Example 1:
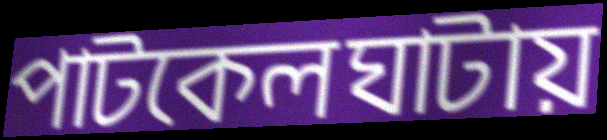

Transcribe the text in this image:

পাটকেলঘাটায়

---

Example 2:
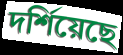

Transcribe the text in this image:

দর্শিয়েছে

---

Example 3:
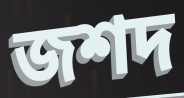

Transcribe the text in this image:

জশদ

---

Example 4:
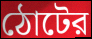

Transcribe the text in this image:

ঠোটের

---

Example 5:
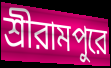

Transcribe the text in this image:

শ্রীরামপুরে